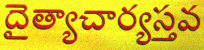
దైత్యాచార్యస్తవ